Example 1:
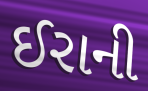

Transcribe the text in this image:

ઈરાની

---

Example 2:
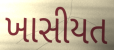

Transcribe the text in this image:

ખાસીયત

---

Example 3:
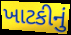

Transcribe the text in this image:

ખાટકીનું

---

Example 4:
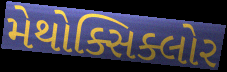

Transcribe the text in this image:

મેથોક્સિક્લોર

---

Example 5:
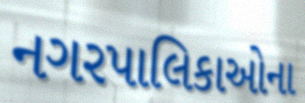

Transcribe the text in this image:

નગરપાલિકાઓના